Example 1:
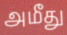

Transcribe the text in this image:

அமீது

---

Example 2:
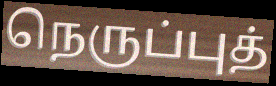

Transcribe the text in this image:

நெருப்புத்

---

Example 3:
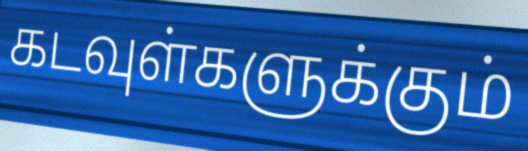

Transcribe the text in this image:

கடவுள்களுக்கும்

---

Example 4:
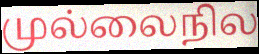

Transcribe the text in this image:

முல்லைநில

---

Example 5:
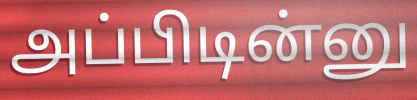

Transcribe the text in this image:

அப்பிடின்னு